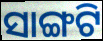
ସାଙ୍ଗଟି